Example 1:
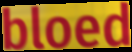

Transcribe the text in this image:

bloed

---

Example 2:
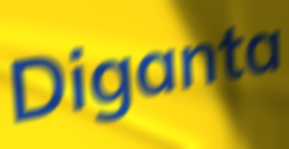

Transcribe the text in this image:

Diganta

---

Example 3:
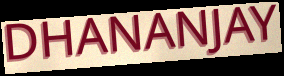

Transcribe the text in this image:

DHANANJAY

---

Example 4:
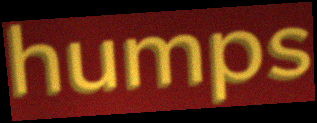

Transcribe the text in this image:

humps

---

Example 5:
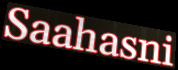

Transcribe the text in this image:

Saahasni